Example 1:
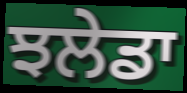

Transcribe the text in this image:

ਝਲੇਡਾ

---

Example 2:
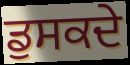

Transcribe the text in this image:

ਡੁਸਕਦੇ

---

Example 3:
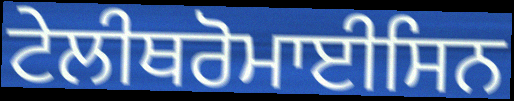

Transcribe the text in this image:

ਟੇਲੀਥਰੋਮਾਈਸਿਨ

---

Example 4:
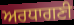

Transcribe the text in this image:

ਅਰਧਾਗਣੀ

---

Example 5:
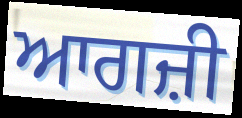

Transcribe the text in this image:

ਆਗਜ਼ੀ